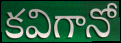
కవిగానో